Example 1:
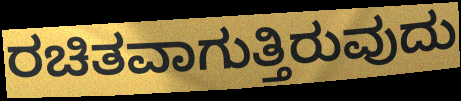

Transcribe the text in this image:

ರಚಿತವಾಗುತ್ತಿರುವುದು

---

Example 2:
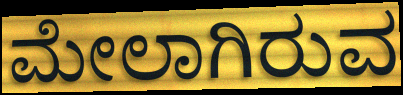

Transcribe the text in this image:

ಮೇಲಾಗಿರುವ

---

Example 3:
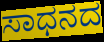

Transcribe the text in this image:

ಸಾಧನದ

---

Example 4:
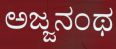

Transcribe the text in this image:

ಅಜ್ಜನಂಥ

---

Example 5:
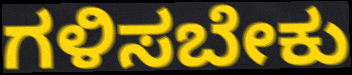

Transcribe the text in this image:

ಗಳಿಸಬೇಕು